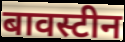
बावस्टीन